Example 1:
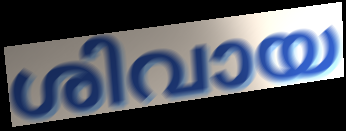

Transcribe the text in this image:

ശിവായ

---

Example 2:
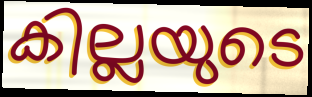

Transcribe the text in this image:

കില്ലയുടെ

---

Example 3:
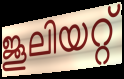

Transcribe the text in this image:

ജൂലിയറ്റ്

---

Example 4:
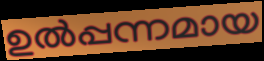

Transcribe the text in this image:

ഉൽപ്പന്നമായ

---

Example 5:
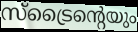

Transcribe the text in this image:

സ്ട്രൈന്റെയും